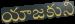
యాజకుని